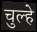
चुल्हे